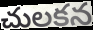
చులకన